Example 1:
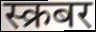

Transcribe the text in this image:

स्‍क्रबर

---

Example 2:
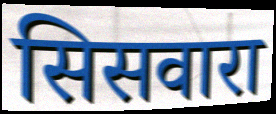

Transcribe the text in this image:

सिसवारा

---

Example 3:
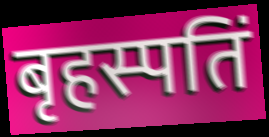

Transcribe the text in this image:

बृहस्पतिं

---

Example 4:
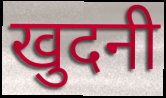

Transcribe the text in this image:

खुदनी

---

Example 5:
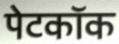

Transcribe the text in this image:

पेटकॉक